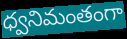
ధ్వనిమంతంగా